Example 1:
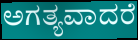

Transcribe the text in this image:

ಅಗತ್ಯವಾದರೆ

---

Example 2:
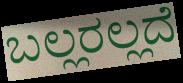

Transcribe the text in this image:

ಬಲ್ಲರಲ್ಲದೆ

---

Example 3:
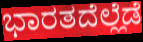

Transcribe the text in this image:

ಭಾರತದೆಲ್ಲೆಡೆ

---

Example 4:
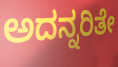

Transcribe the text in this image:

ಅದನ್ನರಿತೇ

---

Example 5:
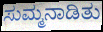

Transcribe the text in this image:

ಸುಮ್ಮನಾಡಿತು